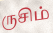
ருசிம்